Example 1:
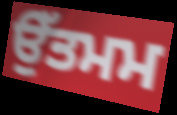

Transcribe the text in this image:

ਉੱਤਮਮ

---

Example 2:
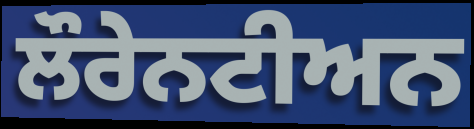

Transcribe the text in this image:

ਲੌਰੇਨਟੀਅਨ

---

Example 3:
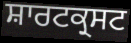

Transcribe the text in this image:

ਸ਼ਾਰਟਕ੍ਰਸਟ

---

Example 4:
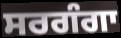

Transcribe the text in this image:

ਸਰਗੰਗਾ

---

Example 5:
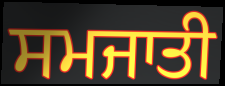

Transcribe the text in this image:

ਸਮਜਾਤੀ